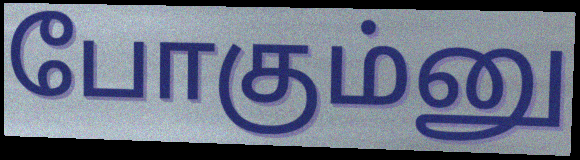
போகும்னு